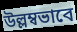
উল্লম্বভাবে